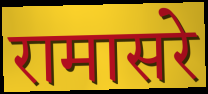
रामासरे